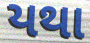
યથા